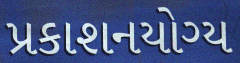
પ્રકાશનયોગ્ય